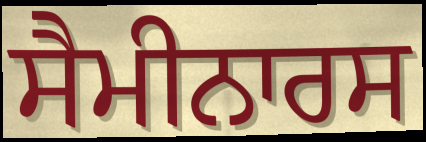
ਸੈਮੀਨਾਰਸ